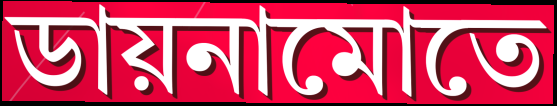
ডায়নামোতে